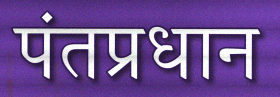
पंतप्रधान